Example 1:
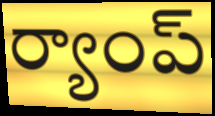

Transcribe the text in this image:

ర్యాంప్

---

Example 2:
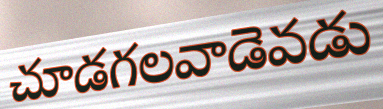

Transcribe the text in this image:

చూడగలవాడెవడు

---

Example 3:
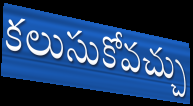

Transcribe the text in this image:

కలుసుకోవచ్చు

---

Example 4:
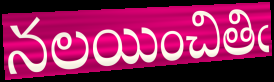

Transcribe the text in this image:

నలయించితిఁ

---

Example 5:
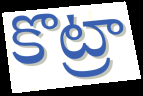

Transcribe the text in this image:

కొట్రా